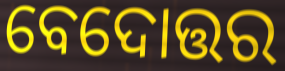
ବେଦୋତ୍ତର